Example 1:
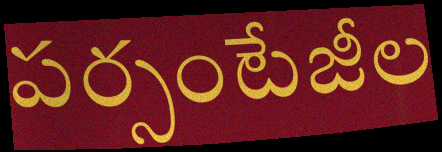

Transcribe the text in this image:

పర్సంటేజీల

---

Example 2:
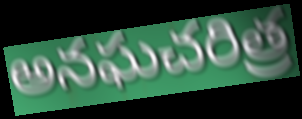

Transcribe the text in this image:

అనఘచరిత్ర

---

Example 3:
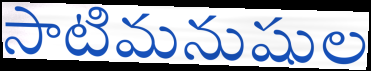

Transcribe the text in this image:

సాటిమనుషుల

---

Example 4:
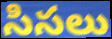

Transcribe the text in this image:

సిసలు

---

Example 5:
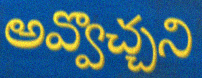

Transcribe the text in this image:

అవ్వొచ్చని